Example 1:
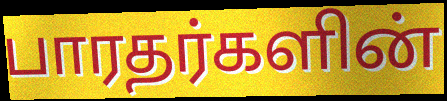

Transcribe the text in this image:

பாரதர்களின்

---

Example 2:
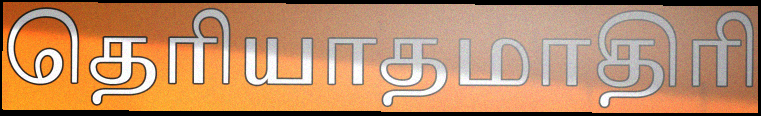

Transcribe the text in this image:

தெரியாதமாதிரி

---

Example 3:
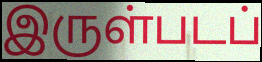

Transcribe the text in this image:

இருள்படப்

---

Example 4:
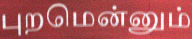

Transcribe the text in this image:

புறமென்னும்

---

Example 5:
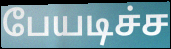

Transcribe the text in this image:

பேயடிச்ச